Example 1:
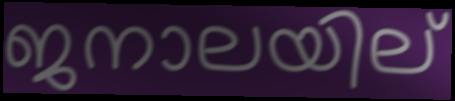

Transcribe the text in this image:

ജനാലയില്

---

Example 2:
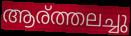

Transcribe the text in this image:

ആര്ത്തലച്ചു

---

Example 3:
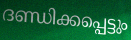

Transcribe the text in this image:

ദണ്ഡിക്കപ്പെട്ടും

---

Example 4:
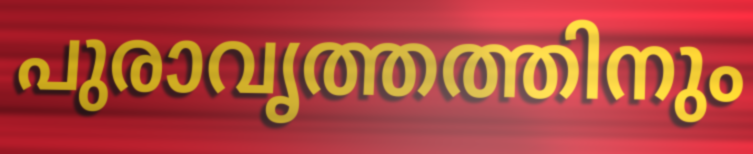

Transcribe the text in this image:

പുരാവൃത്തത്തിനും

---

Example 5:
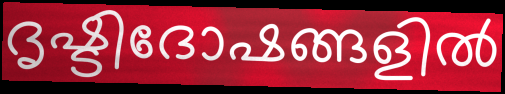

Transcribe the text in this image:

ദൃഷ്ടിദോഷങ്ങളിൽ